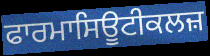
ਫਾਰਮਾਸਿਊਟੀਕਲਜ਼